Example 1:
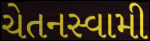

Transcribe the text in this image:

ચેતનસ્વામી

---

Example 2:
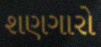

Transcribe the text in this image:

શણગારો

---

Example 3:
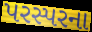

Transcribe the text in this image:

પરસ્પરના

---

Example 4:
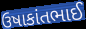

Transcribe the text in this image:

ઉષાકાંતભાઈ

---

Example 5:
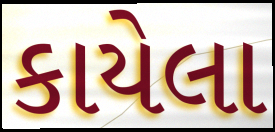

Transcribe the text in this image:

કાયેલા